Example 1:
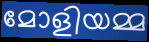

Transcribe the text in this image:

മോളിയമ്മ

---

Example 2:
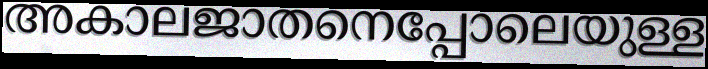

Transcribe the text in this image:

അകാലജാതനെപ്പോലെയുള്ള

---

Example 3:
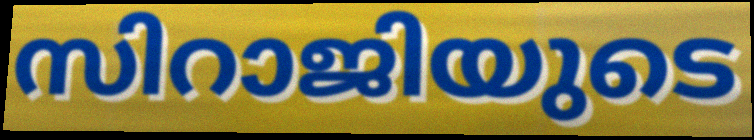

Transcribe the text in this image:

സിറാജിയുടെ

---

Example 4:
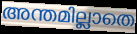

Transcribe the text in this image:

അന്തമില്ലാതെ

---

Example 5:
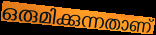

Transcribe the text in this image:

ഒരുമിക്കുന്നതാണ്